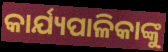
କାର୍ଯ୍ୟପାଳିକାଙ୍କୁ